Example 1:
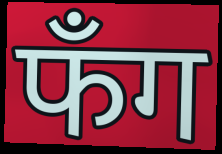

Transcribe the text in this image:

फँग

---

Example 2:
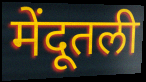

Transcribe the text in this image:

मेंदूतली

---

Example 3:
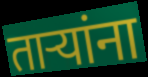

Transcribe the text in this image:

ताऱ्यांना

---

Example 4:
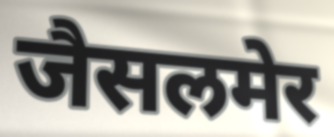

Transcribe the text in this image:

जैसलमेर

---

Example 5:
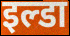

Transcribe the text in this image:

इल्डा